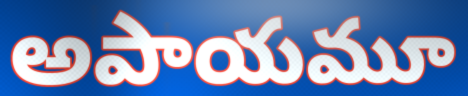
అపాయమూ